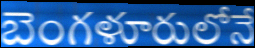
బెంగళూరులోనే